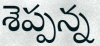
శెప్పన్న